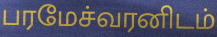
பரமேச்வரனிடம்